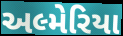
અલ્મેરિયા